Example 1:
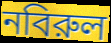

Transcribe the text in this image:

নবিরুল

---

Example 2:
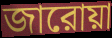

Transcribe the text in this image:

জারোয়া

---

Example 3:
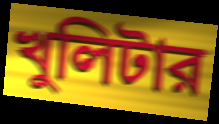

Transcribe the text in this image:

খুলিটার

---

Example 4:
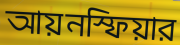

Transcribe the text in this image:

আয়নস্ফিয়ার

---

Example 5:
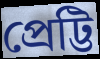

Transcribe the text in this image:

প্রেট্টি